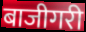
बाजीगरी